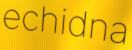
echidna